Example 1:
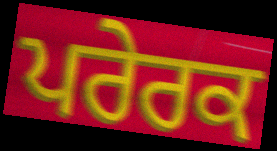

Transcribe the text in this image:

ਪਰੇਰਕ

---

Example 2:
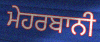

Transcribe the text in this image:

ਮੇਹਰਬਾਨੀ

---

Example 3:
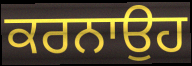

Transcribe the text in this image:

ਕਰਨਾਉਹ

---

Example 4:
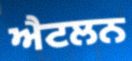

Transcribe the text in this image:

ਐਟਲਨ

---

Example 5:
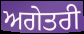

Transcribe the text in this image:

ਅਗੇਤਰੀ